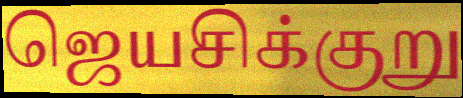
ஜெயசிக்குறு